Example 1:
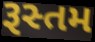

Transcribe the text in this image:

રૂસ્તમ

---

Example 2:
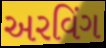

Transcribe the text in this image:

અરવિંગ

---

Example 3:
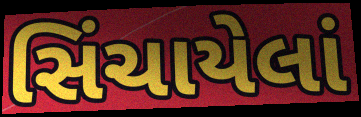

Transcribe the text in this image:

સિંચાયેલાં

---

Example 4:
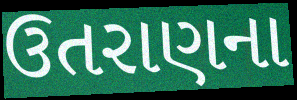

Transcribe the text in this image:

ઉતરાણના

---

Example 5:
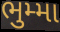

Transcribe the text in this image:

ભુમ્મા